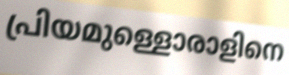
പ്രിയമുള്ളൊരാളിനെ